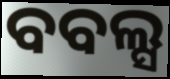
ବବଲ୍ସ